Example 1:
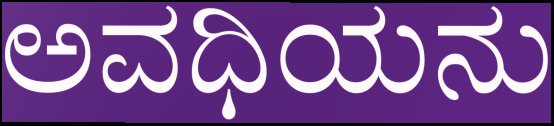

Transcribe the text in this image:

ಅವಧಿಯನು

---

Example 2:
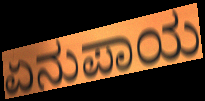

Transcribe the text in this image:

ಏನುಪಾಯ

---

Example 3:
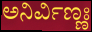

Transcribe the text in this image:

ಅನಿರ್ವಿಣ್ಣಃ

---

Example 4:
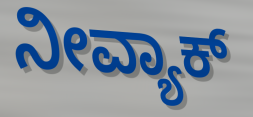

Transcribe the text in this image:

ನೀವ್ಯಾಕ್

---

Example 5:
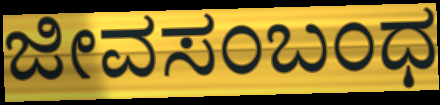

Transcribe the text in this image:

ಜೀವಸಂಬಂಧ